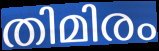
തിമിരം